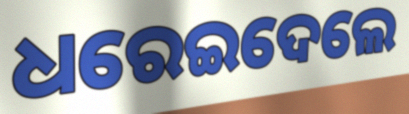
ଧରେଇଦେଲେ